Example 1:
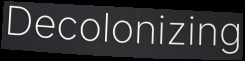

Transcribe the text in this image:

Decolonizing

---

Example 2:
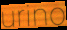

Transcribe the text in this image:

urino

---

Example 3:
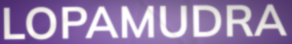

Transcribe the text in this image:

LOPAMUDRA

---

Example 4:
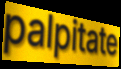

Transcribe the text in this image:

palpitate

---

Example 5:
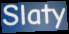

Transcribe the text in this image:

Slaty